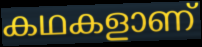
കഥകളാണ്